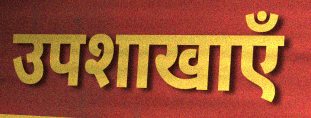
उपशाखाएँ